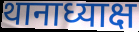
थानाध्याक्ष